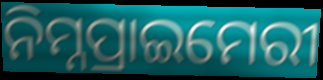
ନିମ୍ନପ୍ରାଇମେରୀ